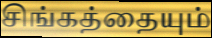
சிங்கத்தையும்